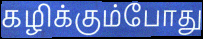
கழிக்கும்போது